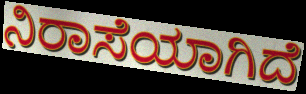
ನಿರಾಸೆಯಾಗಿದೆ